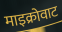
माइक्रोवाट